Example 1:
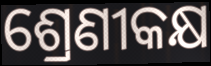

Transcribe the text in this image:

ଶ୍ରେଣୀକକ୍ଷ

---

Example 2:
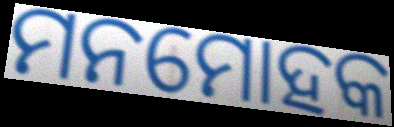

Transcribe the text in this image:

ମନମୋହକ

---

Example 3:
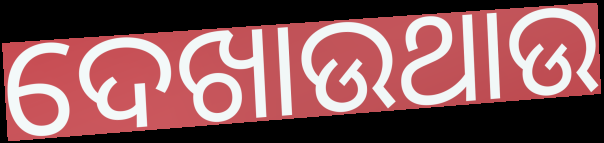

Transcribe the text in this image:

ଦେଖାଉଥାଉ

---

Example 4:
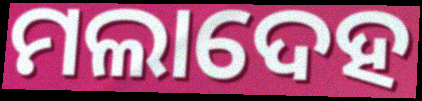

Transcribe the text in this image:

ମଲାଦେହ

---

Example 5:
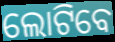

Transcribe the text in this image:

ଲୋଟିବେ